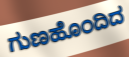
ಗುಣಹೊಂದಿದ